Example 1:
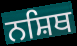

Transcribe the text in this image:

ਨਸ਼ਿਥ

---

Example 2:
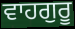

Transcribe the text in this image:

ਵਾਹਗੁਰੂ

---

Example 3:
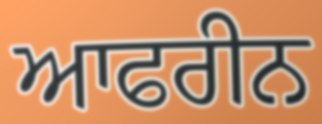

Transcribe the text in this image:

ਆਫਰੀਨ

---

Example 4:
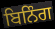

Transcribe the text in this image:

ਬਿਨਿੰਗ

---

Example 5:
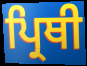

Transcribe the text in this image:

ਪ੍ਰਿਥੀ